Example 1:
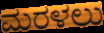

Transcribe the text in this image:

ಮರಳಲು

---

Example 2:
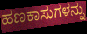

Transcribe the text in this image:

ಹಣಕಾಸುಗಳನ್ನು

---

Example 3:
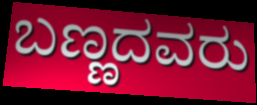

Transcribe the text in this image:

ಬಣ್ಣದವರು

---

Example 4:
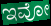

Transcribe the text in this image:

ಇವೋ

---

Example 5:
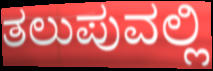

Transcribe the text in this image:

ತಲುಪುವಲ್ಲಿ